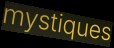
mystiques